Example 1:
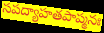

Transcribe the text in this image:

సపద్యాహతపాప్మనః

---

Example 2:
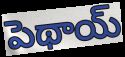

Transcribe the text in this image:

పెథాయ్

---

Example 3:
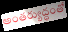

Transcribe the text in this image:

అంతర్యుద్ధంతో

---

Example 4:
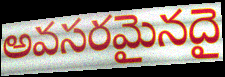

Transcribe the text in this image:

అవసరమైనదై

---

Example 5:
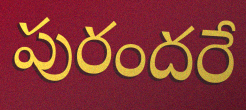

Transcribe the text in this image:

పురందరే